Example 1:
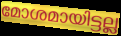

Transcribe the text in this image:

മോശമായിട്ടല്ല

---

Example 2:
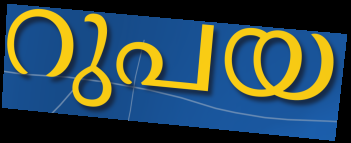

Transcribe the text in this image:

റുപയ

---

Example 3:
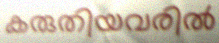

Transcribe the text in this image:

കരുതിയവരിൽ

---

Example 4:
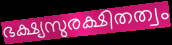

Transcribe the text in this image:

ഭക്ഷ്യസുരക്ഷിതത്വം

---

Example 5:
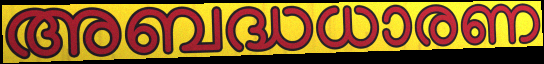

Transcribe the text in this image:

അബദ്ധധാരണ